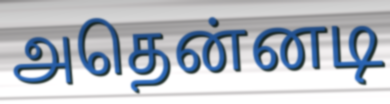
அதென்னடி